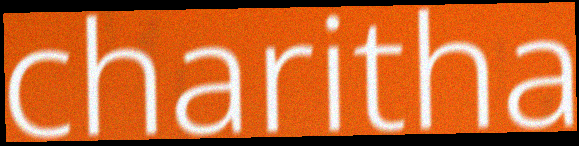
charitha